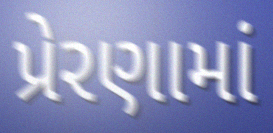
પ્રેરણામાં